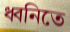
ধ্বনিতে